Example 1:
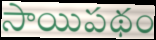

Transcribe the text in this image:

సాయిపథం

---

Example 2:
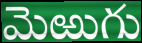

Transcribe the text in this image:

మెఱుగు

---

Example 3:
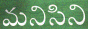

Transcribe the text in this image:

మనిసిని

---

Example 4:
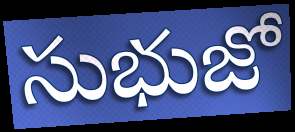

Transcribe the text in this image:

సుభుజో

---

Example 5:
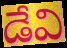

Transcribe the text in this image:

డేవి